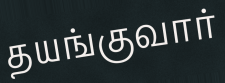
தயங்குவார்